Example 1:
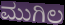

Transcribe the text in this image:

ಮುಗಿಲ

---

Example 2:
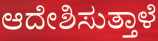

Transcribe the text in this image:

ಆದೇಶಿಸುತ್ತಾಳೆ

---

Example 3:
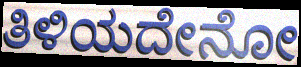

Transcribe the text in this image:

ತಿಳಿಯದೇನೋ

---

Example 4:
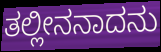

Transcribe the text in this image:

ತಲ್ಲೀನನಾದನು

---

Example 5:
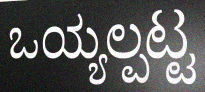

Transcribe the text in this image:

ಒಯ್ಯಲ್ಪಟ್ಟ